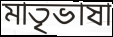
মাতৃভাষা